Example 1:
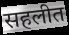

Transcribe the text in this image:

सहलीत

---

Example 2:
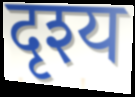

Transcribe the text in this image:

दृश्य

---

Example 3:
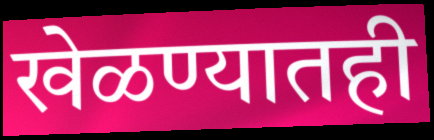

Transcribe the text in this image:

खेळण्यातही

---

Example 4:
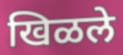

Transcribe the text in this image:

खिळले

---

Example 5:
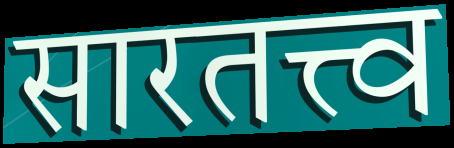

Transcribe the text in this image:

सारतत्त्व